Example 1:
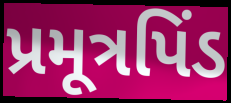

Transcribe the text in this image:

પ્રમૂત્રપિંડ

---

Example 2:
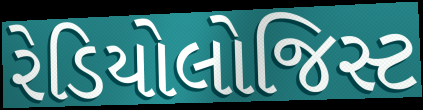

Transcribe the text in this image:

રેડિયોલોજિસ્ટ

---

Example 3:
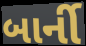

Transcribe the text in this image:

બાર્ની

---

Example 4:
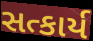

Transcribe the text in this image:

સત્કાર્ય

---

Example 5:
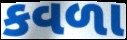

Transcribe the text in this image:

કવળા